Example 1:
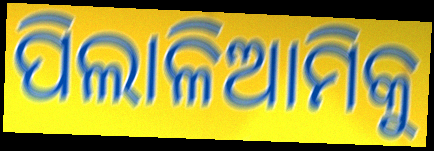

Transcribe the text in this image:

ପିଲାଳିଆମିକୁ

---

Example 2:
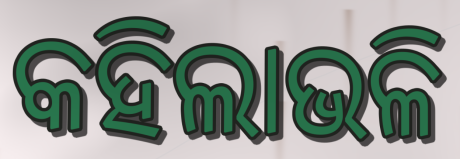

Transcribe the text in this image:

କହିଲାଭଳି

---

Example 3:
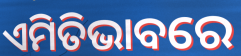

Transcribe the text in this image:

ଏମିତିଭାବରେ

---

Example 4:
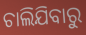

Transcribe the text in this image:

ଚାଲିଯିବାରୁ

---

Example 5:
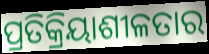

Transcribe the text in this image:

ପ୍ରତିକ୍ରିୟାଶୀଳତାର